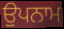
ਉਪਨਾਮ